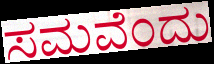
ಸಮವೆಂದು